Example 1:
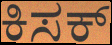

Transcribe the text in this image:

ಕಿಸಕ್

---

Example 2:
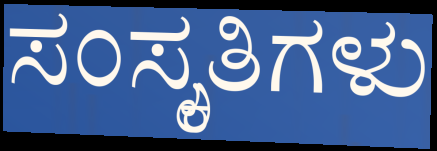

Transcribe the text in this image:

ಸಂಸ್ಕೃತಿಗಳು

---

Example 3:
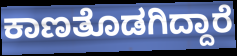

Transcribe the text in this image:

ಕಾಣತೊಡಗಿದ್ದಾರೆ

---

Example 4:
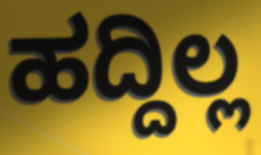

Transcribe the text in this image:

ಹದ್ದಿಲ್ಲ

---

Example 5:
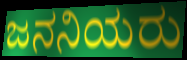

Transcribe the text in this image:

ಜನನಿಯರು